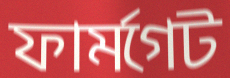
ফার্মগেট